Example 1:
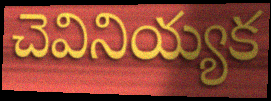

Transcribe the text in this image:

చెవినియ్యక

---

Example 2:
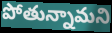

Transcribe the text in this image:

పోతున్నామని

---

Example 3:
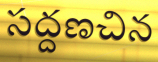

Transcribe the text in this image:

సద్దణచిన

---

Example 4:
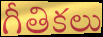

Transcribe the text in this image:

గీతికలు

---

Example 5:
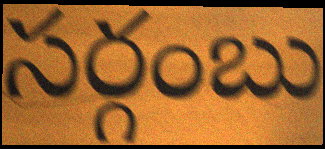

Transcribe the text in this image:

సర్గంబు